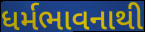
ધર્મભાવનાથી